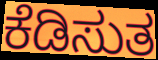
ಕೆಡಿಸುತ